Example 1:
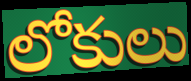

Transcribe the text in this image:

లోకులు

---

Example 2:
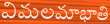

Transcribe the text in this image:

విమలమాభాతి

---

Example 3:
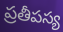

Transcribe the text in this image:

ప్రతీపస్య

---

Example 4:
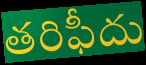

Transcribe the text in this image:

తరిఫీదు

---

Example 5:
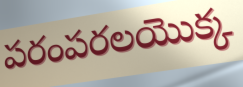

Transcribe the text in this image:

పరంపరలయొక్క